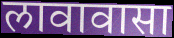
लावावासा